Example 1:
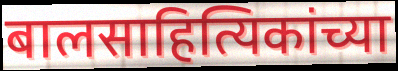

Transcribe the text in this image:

बालसाहित्यिकांच्या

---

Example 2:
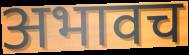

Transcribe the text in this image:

अभावच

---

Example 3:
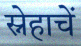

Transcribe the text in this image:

स्नेहाचें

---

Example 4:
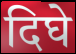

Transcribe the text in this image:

दिघे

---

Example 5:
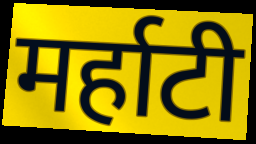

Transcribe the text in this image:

मर्हाटी